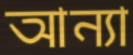
আন্যা